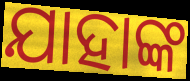
ଯାହାଙ୍କ